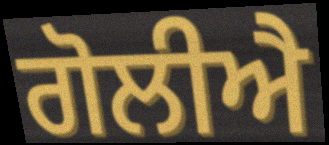
ਗੋਲੀਐ